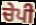
ਚੇਪੀ